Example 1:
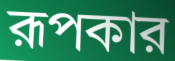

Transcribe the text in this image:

রূপকার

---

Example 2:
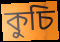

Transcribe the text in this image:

কুচি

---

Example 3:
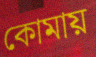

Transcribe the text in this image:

কোমায়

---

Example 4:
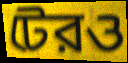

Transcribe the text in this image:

টেরও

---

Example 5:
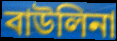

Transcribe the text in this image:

বাউলিনা